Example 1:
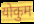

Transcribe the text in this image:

योकुम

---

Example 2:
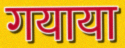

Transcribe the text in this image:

गयाया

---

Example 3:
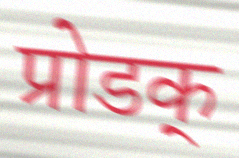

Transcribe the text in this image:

प्रोडक्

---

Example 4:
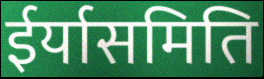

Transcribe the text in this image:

ईर्यासमिति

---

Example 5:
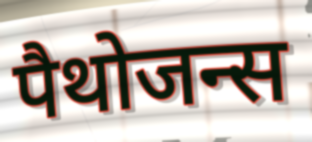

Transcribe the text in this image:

पैथोजन्स